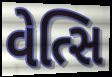
વેત્સિ